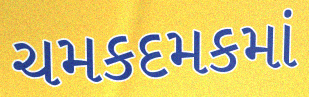
ચમકદમકમાં